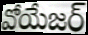
వోయేజర్